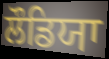
ਲੌਡਿਯਾ